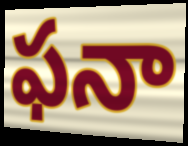
ఫనా